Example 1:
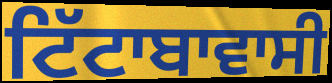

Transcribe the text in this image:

ਟਿੱਟਾਬਾਵਾਸੀ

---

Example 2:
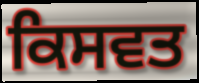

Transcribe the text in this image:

ਕਿਸਵਤ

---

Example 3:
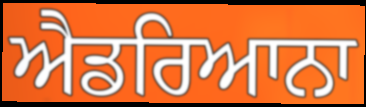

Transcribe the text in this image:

ਐਡਰਿਆਨਾ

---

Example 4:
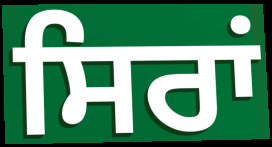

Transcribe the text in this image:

ਸਿਰਾਂ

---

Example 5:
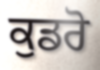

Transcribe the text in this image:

ਕੁਡਰੋ